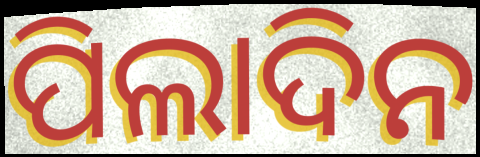
ପିଲାଦିନ